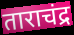
ताराचंद्र